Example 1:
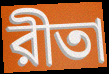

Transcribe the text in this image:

রীতা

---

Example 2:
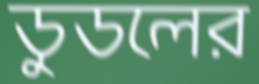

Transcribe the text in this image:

ডুডলের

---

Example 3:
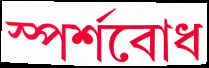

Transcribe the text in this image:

স্পর্শবোধ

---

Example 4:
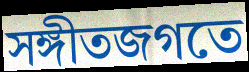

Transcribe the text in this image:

সঙ্গীতজগতে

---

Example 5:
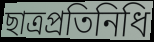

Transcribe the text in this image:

ছাত্রপ্রতিনিধি